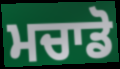
ਮਚਾਡੋ